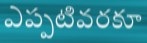
ఎప్పటివరకూ